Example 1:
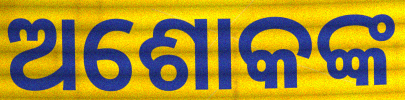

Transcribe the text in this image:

ଅଶୋକଙ୍କ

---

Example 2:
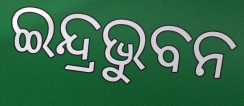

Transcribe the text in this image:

ଇନ୍ଦ୍ରଭୁବନ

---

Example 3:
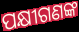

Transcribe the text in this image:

ପକ୍ଷୀଗଣଙ୍କ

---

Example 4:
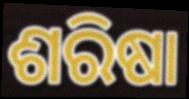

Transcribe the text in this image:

ଶରିଷା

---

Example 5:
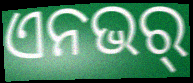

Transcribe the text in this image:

ଏନଭର୍